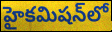
హైకమిషన్‌లో